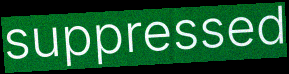
suppressed